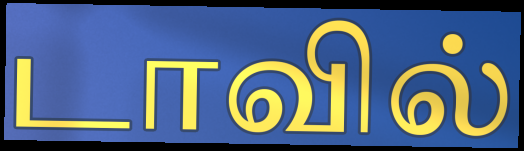
டாவில்